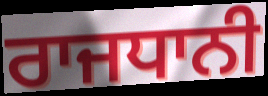
ਰਾਜਧਾਨੀ